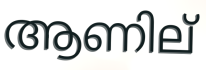
ആണില്